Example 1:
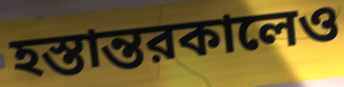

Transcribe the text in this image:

হস্তান্তরকালেও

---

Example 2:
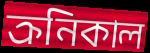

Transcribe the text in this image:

ক্রনিকাল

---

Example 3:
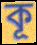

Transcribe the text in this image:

কূ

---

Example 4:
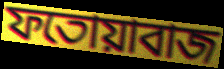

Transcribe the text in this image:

ফতোয়াবাজ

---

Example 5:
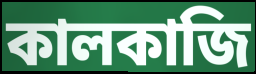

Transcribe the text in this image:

কালকাজি